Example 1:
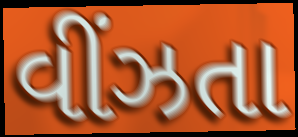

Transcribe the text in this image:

વીંઝતા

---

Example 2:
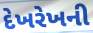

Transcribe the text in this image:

દેખરેખની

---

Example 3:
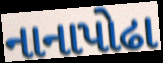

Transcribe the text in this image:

નાનાપોઢા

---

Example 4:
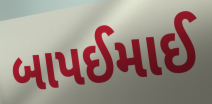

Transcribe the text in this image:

બાપઈમાઈ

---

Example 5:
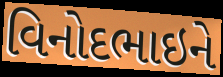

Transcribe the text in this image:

વિનોદભાઇને